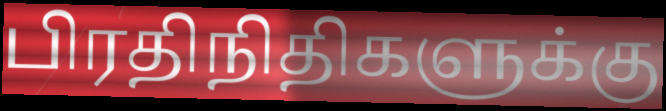
பிரதிநிதிகளுக்கு